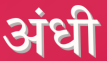
अंधी